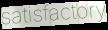
satisfactory